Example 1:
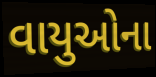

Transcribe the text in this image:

વાયુઓના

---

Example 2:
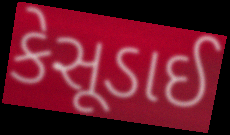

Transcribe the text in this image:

કેસૂડાઈ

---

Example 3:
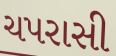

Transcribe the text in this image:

ચપરાસી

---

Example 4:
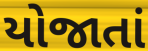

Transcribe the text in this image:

યોજાતાં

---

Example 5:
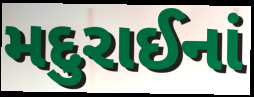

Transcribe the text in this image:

મદુરાઈનાં